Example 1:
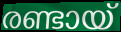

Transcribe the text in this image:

രണ്ടായ്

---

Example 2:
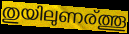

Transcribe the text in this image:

തുയിലുണര്ത്തൂ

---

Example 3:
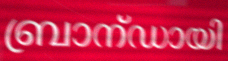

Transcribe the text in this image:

ബ്രാന്ഡായി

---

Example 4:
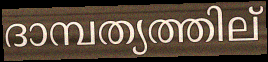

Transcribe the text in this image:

ദാമ്പത്യത്തില്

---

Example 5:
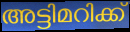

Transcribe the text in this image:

അട്ടിമറിക്ക്